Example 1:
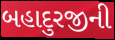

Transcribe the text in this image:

બહાદુરજીની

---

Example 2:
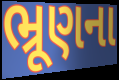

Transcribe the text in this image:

ભ્રૂણના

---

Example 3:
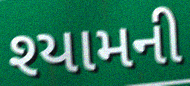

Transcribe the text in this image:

શ્યામની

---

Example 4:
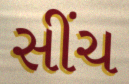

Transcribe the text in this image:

સીંચ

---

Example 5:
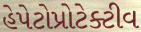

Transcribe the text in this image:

હેપેટોપ્રોટેક્ટીવ